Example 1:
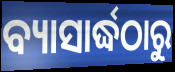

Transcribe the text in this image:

ବ୍ୟାସାର୍ଦ୍ଧଠାରୁ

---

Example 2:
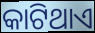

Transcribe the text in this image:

କାଟିଥାଏ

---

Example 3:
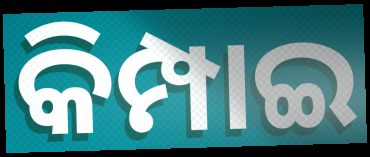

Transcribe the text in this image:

କିମ୍ପାଇ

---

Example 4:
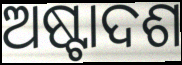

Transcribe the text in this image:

ଅଷ୍ଟାଦଶ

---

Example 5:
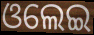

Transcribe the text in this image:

ଓଲେଇ